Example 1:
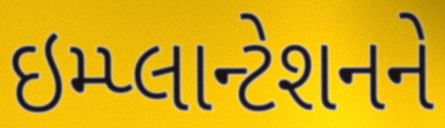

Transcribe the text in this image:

ઇમ્પ્લાન્ટેશનને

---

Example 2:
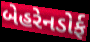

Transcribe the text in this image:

બેહરેનડોર્ફ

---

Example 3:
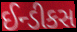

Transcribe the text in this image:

ઈન્ડીકસ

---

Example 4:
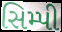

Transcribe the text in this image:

સિમ્પી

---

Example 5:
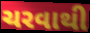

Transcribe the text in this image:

ચરવાથી